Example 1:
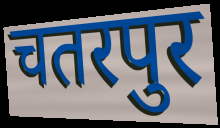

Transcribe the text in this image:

चतरपुर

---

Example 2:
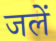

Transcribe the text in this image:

जलें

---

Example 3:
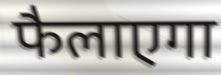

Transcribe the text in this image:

फैलाएगा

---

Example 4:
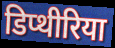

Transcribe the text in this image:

डिप्थीरिया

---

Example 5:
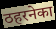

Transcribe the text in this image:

ठहरनेका